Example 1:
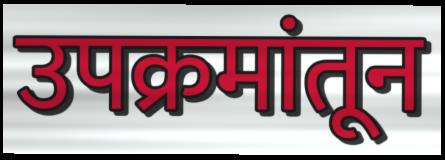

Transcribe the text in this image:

उपक्रमांतून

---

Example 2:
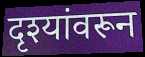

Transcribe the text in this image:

दृश्यांवरून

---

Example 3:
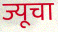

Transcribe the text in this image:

ज्यूचा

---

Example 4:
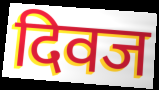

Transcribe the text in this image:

दिवज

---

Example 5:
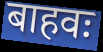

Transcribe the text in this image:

बाहवः